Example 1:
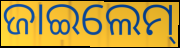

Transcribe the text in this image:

ଜାଇଲେମ୍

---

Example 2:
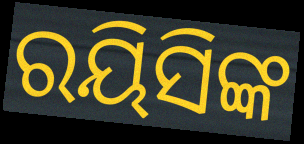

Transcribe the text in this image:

ରୟିସିଙ୍କ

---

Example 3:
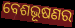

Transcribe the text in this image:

ବେଶଭୂଷଣର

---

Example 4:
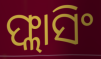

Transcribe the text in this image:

ଫ୍ଲାସିଂ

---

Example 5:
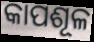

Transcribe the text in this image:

କାପଶୂଳ